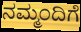
ನಮ್ಮಂದಿಗೆ